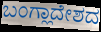
ಬಂಗ್ಲಾದೇಶದ